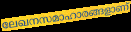
ലേഖനസമാഹാരങ്ങളാണ്